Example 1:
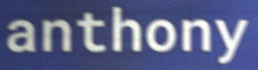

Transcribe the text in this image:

anthony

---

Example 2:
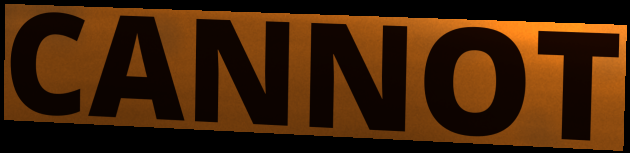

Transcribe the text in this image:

CANNOT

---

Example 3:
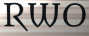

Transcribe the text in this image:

RWO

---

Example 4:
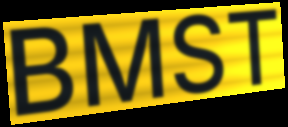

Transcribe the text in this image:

BMST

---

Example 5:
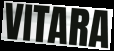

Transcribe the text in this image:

VITARA